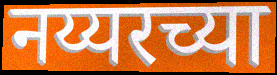
नय्यरच्या